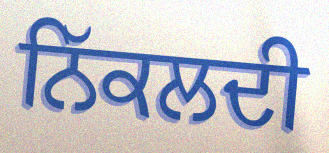
ਨਿੱਕਲਦੀ